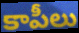
కాపీలు